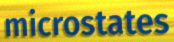
microstates